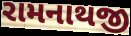
રામનાથજી